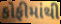
કોફીમાંથી